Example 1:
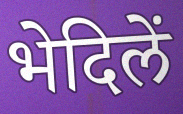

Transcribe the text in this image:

भेदिलें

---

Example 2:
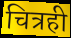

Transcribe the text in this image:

चित्रही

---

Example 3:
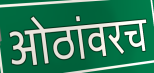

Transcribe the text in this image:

ओठांवरच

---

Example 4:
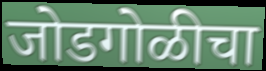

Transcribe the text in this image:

जोडगोळीचा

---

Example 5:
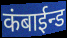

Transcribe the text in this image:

कंबाईन्ड